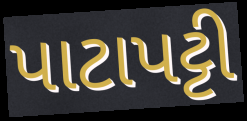
પાટાપટ્ટી